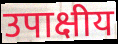
उपाक्षीय